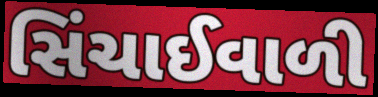
સિંચાઈવાળી